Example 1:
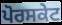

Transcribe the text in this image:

ਪੋਰਸਕੇਟ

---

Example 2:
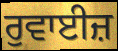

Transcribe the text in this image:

ਰੁਵਾਈਜ਼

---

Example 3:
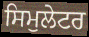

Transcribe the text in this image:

ਸਿਮੁਲੇਟਰ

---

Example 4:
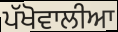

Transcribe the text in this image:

ਪੱਖੋਵਾਲੀਆ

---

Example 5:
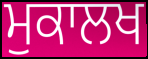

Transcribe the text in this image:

ਮੁਕਾਲਖ